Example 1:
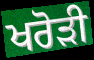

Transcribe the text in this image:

ਖਰੋੜੀ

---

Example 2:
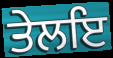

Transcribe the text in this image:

ਤੇਲਇ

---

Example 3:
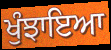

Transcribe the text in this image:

ਖੁੰਝਾਇਆ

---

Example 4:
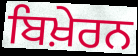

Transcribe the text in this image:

ਬਿਖ਼ੇਰਨ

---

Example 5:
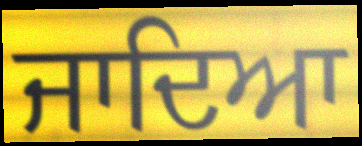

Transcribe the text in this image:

ਜਾਦਿਆ